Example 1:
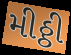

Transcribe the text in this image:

મીઠ્ઠી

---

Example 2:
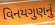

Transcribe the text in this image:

વિનયગુણનું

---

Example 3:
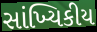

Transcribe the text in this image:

સાંખ્યિકીય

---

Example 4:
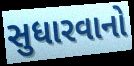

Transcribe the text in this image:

સુધારવાનો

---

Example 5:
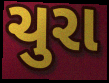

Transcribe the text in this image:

ચુરા